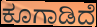
ಕೂಗಾಡಿದೆ